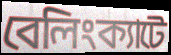
বেলিংক্যাটে